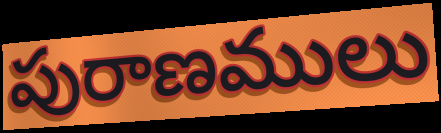
పురాణములు